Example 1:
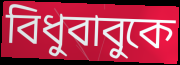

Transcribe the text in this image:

বিধুবাবুকে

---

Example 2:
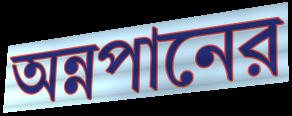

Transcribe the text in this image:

অন্নপানের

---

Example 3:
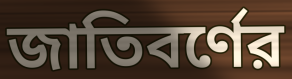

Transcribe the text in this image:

জাতিবর্ণের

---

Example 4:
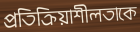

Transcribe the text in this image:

প্রতিক্রিয়াশীলতাকে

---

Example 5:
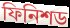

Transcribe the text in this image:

ফিনিশড